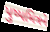
પુષ્પમિત્રને